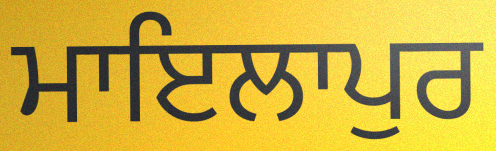
ਮਾਇਲਾਪੁਰ